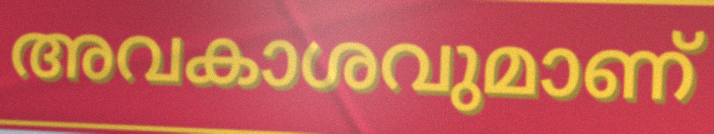
അവകാശവുമാണ്